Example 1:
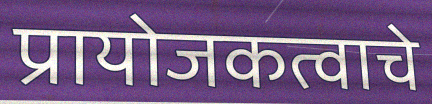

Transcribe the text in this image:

प्रायोजकत्वाचे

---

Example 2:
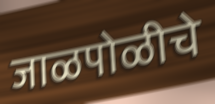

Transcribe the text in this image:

जाळपोळीचे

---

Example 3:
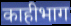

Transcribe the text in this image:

काहीभाग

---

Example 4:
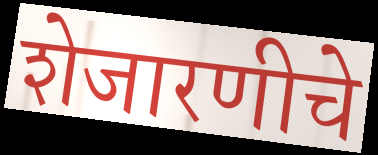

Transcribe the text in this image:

शेजारणीचे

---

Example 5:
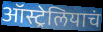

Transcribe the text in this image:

ऑस्ट्रेलियाचं